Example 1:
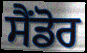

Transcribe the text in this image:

ਸੈਂਡੋਰ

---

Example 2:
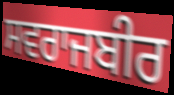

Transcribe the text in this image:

ਸਵਰਾਜਬੀਰ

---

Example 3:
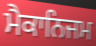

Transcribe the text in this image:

ਮੈਕਾਨਿਜਮ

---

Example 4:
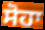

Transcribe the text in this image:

ਸੋਹਾ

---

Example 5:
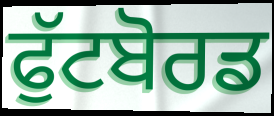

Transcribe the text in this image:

ਫੁੱਟਬੋਰਡ